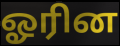
ஓரின